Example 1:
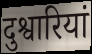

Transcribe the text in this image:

दुश्वारियां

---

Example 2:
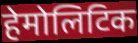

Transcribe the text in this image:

हेमोलिटिक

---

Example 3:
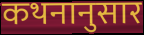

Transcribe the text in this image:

कथनानुसार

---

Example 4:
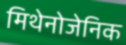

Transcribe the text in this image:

मिथेनोजेनिक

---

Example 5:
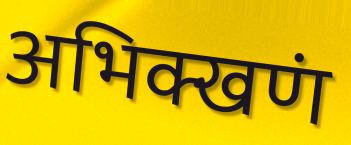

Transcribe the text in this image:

अभिक्खणं